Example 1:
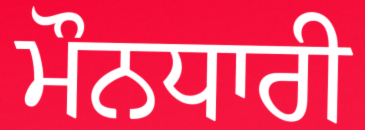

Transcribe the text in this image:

ਮੌਨਧਾਰੀ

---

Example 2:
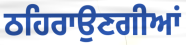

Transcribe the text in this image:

ਠਹਿਰਾਉਣਗੀਆਂ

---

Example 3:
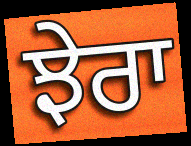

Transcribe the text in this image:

ਝੇਰਾ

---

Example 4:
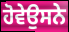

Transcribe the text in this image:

ਹੋਵੇਉਸਨੇ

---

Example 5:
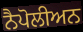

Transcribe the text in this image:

ਨੈਪੋਲੀਅਨ